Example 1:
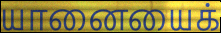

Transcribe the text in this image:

யானையைக்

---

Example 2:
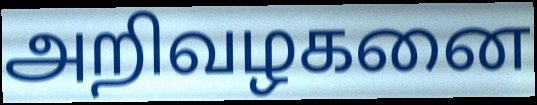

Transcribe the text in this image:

அறிவழகனை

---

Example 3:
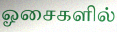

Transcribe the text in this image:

ஓசைகளில்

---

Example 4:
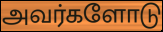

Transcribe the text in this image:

அவர்களோடு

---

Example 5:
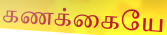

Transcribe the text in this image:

கணக்கையே